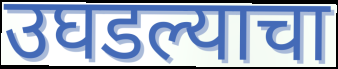
उघडल्याचा